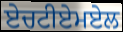
ਏਚਟੀਏਮਏਲ